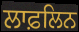
ਲਾਫ਼ਲਿਨ